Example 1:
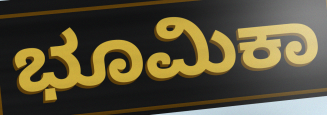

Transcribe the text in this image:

ಭೂಮಿಕಾ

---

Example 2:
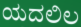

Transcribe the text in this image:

ಯದಲಿಲ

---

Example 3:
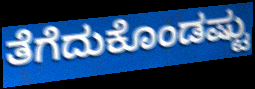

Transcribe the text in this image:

ತೆಗೆದುಕೊಂಡಷ್ಟು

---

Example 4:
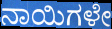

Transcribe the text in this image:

ನಾಯಿಗಳೇ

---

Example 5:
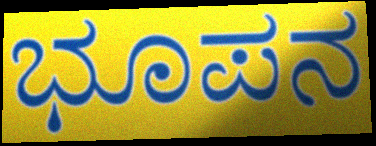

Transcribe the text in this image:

ಭೂಪನ